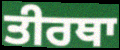
ਤੀਰਥਾ